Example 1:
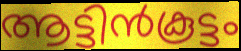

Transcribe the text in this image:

ആട്ടിൻകൂട്ടം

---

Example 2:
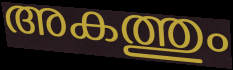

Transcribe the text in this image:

അകത്തും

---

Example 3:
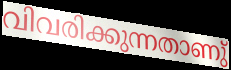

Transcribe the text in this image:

വിവരിക്കുന്നതാണു്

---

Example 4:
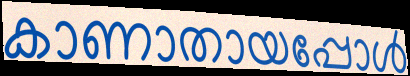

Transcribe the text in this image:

കാണാതായപ്പോൾ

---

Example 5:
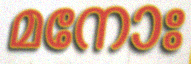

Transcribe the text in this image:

മനോഃ